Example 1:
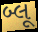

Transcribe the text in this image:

બ્લૂ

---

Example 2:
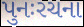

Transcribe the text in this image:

પુનઃરચના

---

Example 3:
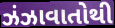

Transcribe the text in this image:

ઝંઝાવાતોથી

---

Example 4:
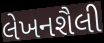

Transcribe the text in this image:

લેખનશૈલી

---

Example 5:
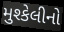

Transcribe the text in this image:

મુશ્કેલીનો